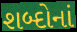
શબ્દોનાં